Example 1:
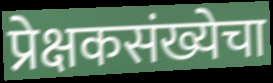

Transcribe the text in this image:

प्रेक्षकसंख्येचा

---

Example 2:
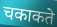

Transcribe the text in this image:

चकाकते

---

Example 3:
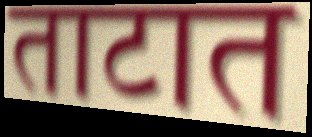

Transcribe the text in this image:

ताटात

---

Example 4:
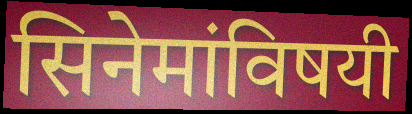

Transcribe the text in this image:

सिनेमांविषयी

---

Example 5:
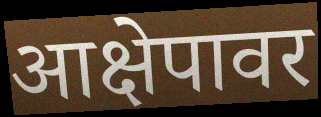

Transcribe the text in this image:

आक्षेपावर